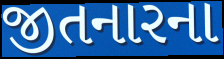
જીતનારના